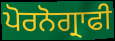
ਪੋਰਨੋਗ੍ਰਾਫੀ